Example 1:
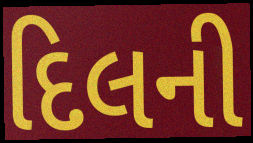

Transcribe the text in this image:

દિલની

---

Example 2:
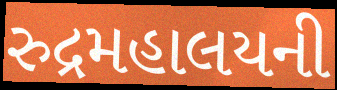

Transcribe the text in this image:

રુદ્રમહાલયની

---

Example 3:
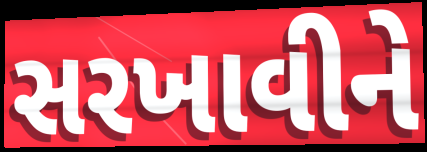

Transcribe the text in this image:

સરખાવીને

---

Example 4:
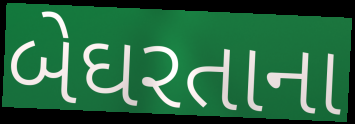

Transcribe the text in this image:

બેઘરતાના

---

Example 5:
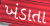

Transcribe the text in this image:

ખંડાતા